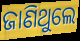
ଜାଣିଥୁଲେ